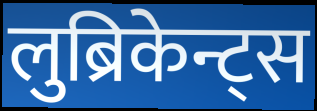
लुब्रिकेन्ट्स